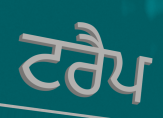
ਟਰੈਪ